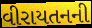
વીરાયતનની